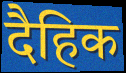
दैहिक